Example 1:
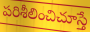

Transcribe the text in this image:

పరిశీలించిచూస్తే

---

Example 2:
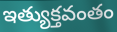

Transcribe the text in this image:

ఇత్యుక్తవంతం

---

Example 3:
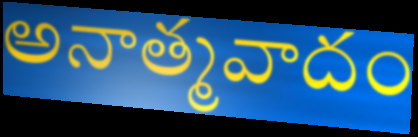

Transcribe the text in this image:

అనాత్మవాదం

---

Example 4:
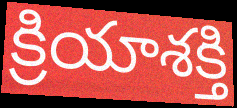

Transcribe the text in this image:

క్రియాశక్తి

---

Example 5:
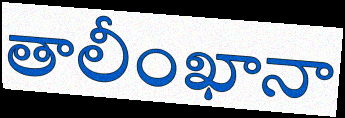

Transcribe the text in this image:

తాలీంఖానా